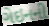
ગેઇનની